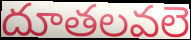
దూతలవలె